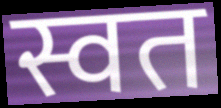
स्वत